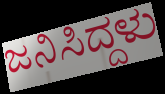
ಜನಿಸಿದ್ದಳು